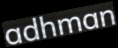
adhman